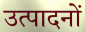
उत्पादनों